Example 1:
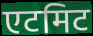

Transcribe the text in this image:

एटमिट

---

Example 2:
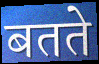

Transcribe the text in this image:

बतते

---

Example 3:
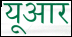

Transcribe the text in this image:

यूआर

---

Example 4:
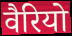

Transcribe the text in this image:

वैरियो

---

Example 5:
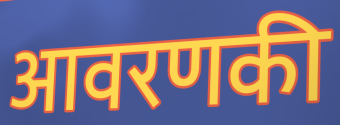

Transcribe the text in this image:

आवरणकी